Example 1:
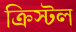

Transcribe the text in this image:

ক্রিস্টল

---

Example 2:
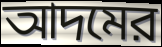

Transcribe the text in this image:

আদমের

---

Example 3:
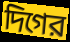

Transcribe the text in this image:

দিগের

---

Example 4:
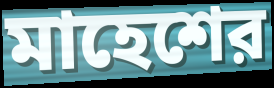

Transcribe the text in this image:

মাহেশের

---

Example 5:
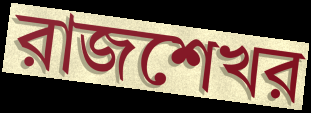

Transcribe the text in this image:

রাজশেখর